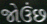
જોઉંછ